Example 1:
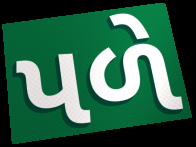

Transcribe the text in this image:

પળે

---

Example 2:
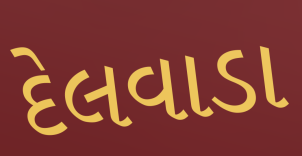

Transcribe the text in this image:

દેલવાડા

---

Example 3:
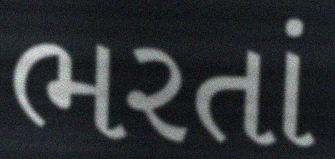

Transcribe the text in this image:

ભરતાં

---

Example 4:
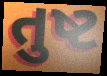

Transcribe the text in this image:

તુષ્ટ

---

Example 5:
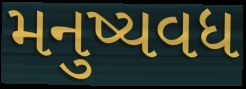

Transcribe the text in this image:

મનુષ્યવધ